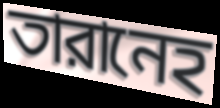
তারানেহ